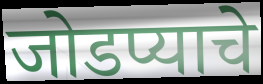
जोडप्याचे